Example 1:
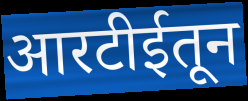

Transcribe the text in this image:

आरटीईतून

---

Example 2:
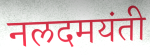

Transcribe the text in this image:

नलदमयंती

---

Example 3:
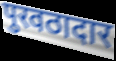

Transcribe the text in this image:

पुरवठादार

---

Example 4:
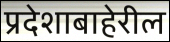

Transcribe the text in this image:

प्रदेशाबाहेरील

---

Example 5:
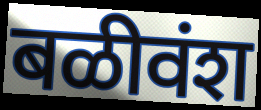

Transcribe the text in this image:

बळीवंश